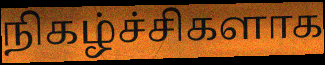
நிகழ்ச்சிகளாக